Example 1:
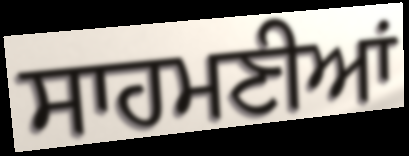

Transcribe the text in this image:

ਸਾਹਮਣੀਆਂ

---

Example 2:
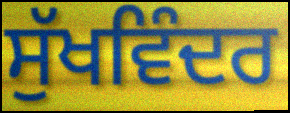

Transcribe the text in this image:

ਸੁੱਖਵਿੰਦਰ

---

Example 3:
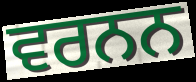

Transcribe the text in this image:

ਵਰਨਨ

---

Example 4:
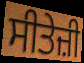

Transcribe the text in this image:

ਸੀਤੇਜ਼ੀ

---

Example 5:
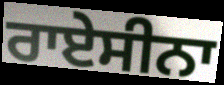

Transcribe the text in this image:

ਰਾਏਸੀਨਾ